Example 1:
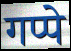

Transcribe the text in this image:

गप्पे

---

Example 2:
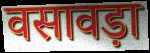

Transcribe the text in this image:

वसावड़ा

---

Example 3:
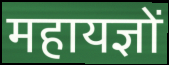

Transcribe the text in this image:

महायज्ञों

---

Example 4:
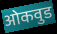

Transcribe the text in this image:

ओकवुड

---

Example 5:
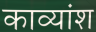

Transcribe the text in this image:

काव्यांश